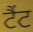
ਟੈਂਟ